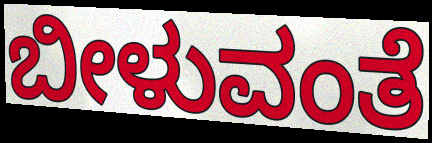
ಬೀಳುವಂತೆ